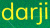
darji